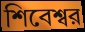
শিবেশ্বর